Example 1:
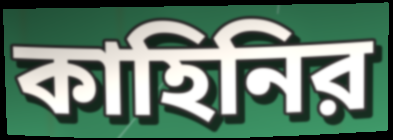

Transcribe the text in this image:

কাহিনির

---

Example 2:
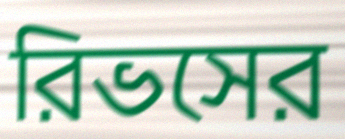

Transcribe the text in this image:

রিভসের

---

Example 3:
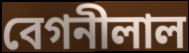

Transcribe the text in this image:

বেগনীলাল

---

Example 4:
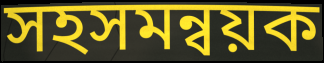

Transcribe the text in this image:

সহসমন্বয়ক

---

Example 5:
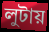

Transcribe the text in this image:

লুটায়